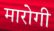
मारोगी